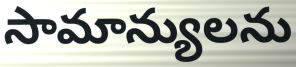
సామాన్యులను